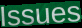
Issues